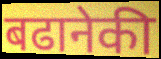
बढानेकी